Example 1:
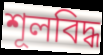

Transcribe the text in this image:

শূলবিদ্ধ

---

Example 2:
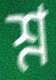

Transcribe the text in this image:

শ্ন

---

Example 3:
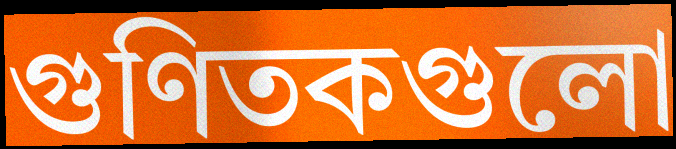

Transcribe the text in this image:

গুণিতকগুলো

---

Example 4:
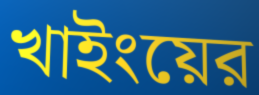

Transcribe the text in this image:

খাইংয়ের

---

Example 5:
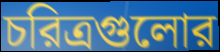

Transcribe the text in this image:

চরিত্রগুলোর